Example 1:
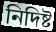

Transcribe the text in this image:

নিদিষ্ট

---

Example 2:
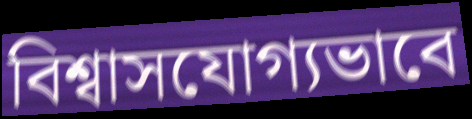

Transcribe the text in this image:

বিশ্বাসযোগ্যভাবে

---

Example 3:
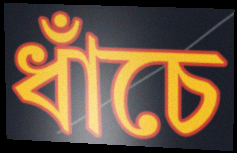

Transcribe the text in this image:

ধাঁচে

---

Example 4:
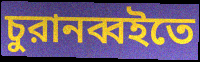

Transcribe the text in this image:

চুরানব্বইতে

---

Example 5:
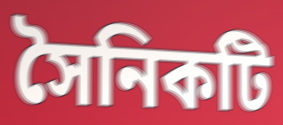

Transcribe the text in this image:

সৈনিকটি